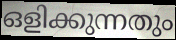
ഒളിക്കുന്നതും